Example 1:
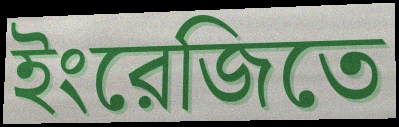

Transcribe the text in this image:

ইংরেজিতে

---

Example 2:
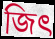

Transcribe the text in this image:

জিৎ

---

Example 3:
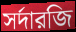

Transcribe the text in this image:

সর্দারজি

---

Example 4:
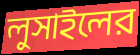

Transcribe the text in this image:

লুসাইলের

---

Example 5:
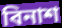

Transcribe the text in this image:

বিনাশ